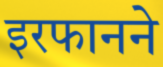
इरफानने